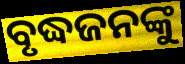
ବୃଦ୍ଧଜନଙ୍କୁ